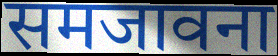
समजावना